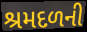
શ્રમદળની